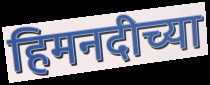
हिमनदीच्या